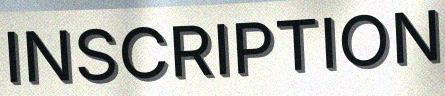
INSCRIPTION